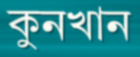
কুনখান